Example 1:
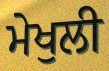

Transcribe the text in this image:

ਮੇਖੁਲੀ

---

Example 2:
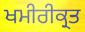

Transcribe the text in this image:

ਖਮੀਰੀਕ੍ਰਤ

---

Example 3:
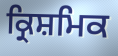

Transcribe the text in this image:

ਕ੍ਰਿਸ਼ਮਿਕ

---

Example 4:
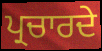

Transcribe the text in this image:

ਪ੍ਰਚਾਰਦੇ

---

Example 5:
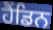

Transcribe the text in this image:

ਹੈਂਡਿਨ